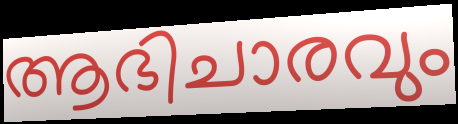
ആഭിചാരവും